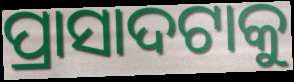
ପ୍ରାସାଦଟାକୁ